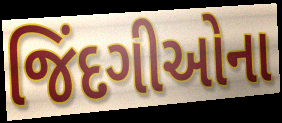
જિંદગીઓના